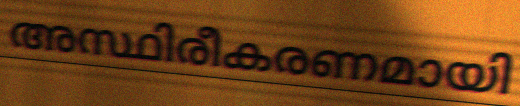
അസ്ഥിരീകരണമായി